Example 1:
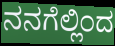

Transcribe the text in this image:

ನನಗೆಲ್ಲಿಂದ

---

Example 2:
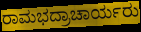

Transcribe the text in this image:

ರಾಮಭದ್ರಾಚಾರ್ಯರು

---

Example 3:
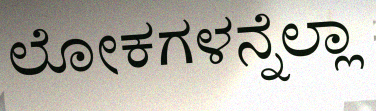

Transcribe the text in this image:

ಲೋಕಗಳನ್ನೆಲ್ಲಾ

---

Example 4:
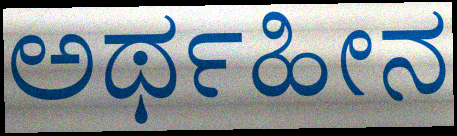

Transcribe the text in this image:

ಅರ್ಥಹೀನ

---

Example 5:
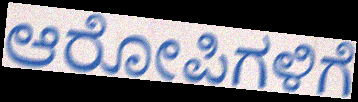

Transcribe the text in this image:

ಆರೋಪಿಗಳಿಗೆ